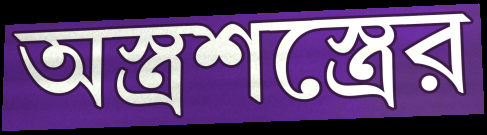
অস্ত্রশস্ত্রের